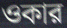
ওকার